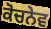
ਕੋਚਨੇਵ